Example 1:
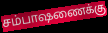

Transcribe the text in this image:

சம்பாஷணைக்கு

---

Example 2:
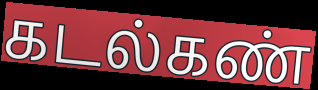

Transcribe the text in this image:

கடல்கண்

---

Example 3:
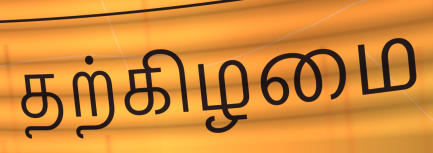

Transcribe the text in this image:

தற்கிழமை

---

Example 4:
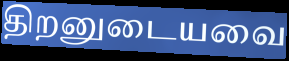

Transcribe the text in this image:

திறனுடையவை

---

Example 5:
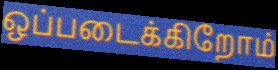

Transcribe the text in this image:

ஒப்படைக்கிறோம்